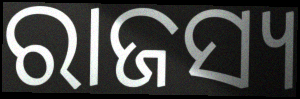
ରାଜସ୍ୟ